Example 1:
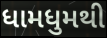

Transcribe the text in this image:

ધામધુમથી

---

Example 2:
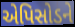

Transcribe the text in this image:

એપિસોડને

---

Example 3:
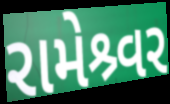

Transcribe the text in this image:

રામેશ્ર્વર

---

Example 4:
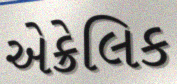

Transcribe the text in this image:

એક્રેલિક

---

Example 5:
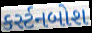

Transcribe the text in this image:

કર્સ્ટનબોશ